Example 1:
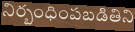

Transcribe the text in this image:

నిర్బంధింపబడితిని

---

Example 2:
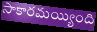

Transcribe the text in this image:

సాకారమయ్యింది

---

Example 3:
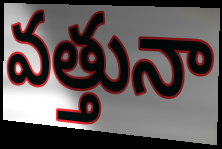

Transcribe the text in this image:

వత్తునా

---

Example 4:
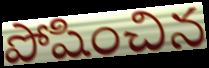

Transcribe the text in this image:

పోషించిన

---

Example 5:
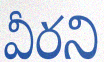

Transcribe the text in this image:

వీరని